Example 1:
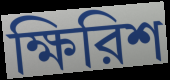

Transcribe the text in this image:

ক্ষিরিশ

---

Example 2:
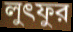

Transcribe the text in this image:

লুৎফুর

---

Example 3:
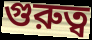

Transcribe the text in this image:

গুরুত্ব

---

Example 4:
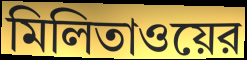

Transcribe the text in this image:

মিলিতাওয়ের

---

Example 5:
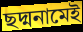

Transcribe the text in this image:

ছদ্মনামেই